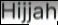
Hijjah